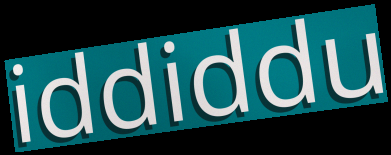
iddiddu